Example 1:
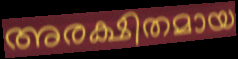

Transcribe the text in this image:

അരക്ഷിതമായ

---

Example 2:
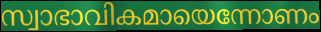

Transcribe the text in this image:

സ്വാഭാവികമായെന്നോണം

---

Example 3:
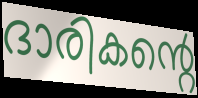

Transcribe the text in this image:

ദാരികന്റെ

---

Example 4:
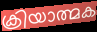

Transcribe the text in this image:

ക്രിയാത്മക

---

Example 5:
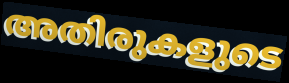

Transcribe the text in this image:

അതിരുകളുടെ